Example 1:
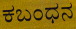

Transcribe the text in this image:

ಕಬಂಧನ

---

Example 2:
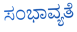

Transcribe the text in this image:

ಸಂಭಾವ್ಯತೆ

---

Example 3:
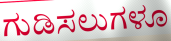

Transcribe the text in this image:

ಗುಡಿಸಲುಗಳೂ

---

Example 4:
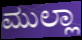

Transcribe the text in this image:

ಮುಲ್ಲಾ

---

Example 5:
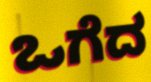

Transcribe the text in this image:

ಒಗೆದ